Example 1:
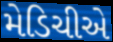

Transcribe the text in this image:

મેડિચીએ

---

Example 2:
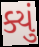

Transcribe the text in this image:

ક્યું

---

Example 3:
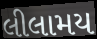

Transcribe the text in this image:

લીલામય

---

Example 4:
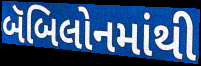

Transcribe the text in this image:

બૅબિલોનમાંથી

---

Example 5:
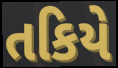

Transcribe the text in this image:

તકિયે